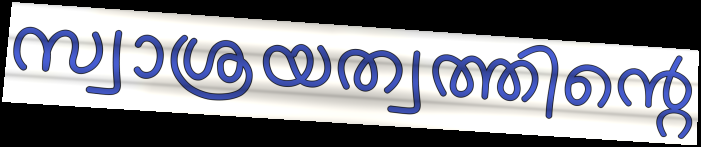
സ്വാശ്രയത്വത്തിന്റെ